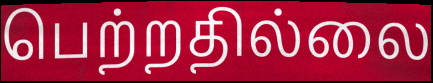
பெற்றதில்லை